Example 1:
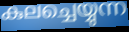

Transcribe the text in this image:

കുലച്ചെയ്യുന്ന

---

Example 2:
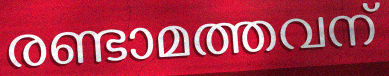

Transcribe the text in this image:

രണ്ടാമത്തവന്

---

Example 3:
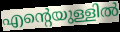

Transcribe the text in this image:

എന്റെയുള്ളിൽ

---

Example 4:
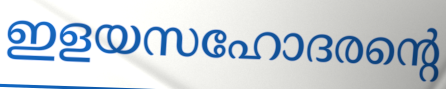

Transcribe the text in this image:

ഇളയസഹോദരന്റെ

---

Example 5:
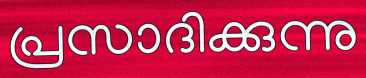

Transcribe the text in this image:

പ്രസാദിക്കുന്നു